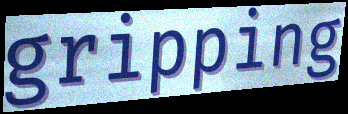
gripping